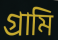
গ্রামি